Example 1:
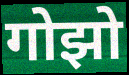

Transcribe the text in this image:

गोझो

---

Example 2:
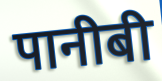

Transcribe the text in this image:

पानीबी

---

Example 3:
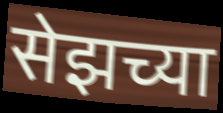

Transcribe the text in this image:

सेझच्या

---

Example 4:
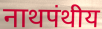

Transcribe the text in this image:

नाथपंथीय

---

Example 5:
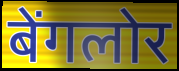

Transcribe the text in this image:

बेंगलोर